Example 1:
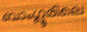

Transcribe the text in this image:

ബാംഗ്ലൂരിലെ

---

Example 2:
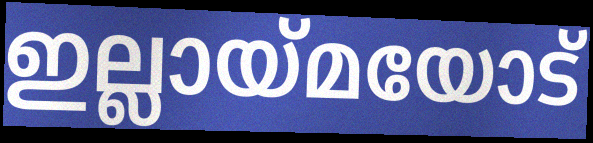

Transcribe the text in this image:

ഇല്ലായ്മയോട്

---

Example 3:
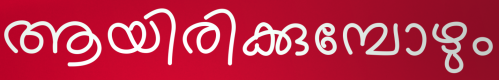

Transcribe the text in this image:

ആയിരിക്കുമ്പോഴും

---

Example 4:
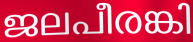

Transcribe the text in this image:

ജലപീരങ്കി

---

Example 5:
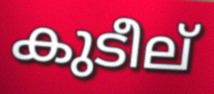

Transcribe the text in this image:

കുടീല്